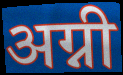
अग्नी